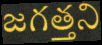
జగత్తని